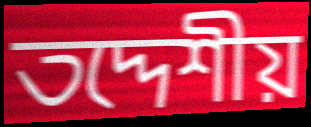
তদ্দেশীয়